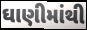
ઘાણીમાંથી